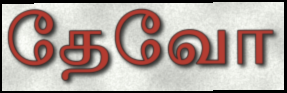
தேவோ